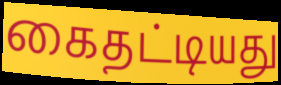
கைதட்டியது